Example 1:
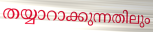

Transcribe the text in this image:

തയ്യാറാക്കുന്നതിലും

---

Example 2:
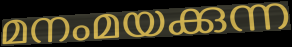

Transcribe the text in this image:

മനംമയക്കുന്ന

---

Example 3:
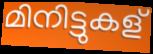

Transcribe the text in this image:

മിനിട്ടുകള്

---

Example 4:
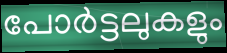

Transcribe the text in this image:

പോർട്ടലുകളും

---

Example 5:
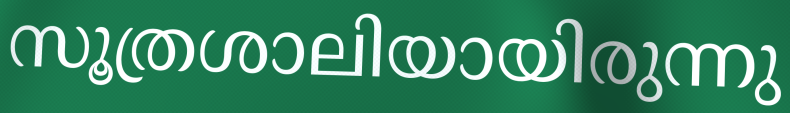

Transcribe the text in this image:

സൂത്രശാലിയായിരുന്നു